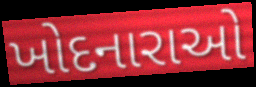
ખોદનારાઓ